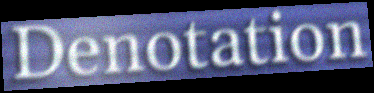
Denotation